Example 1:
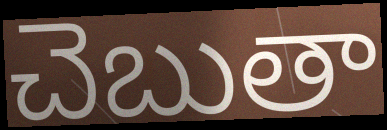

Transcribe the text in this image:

చెబుతా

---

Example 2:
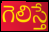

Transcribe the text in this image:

గెలిస్తే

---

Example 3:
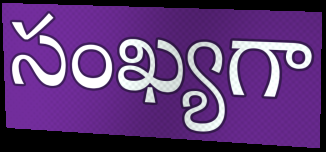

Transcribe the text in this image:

సంఖ్యగా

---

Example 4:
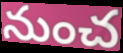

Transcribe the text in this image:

నుంచ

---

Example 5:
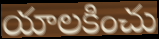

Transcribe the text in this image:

యాలకించు